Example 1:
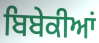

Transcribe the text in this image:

ਬਿਬੇਕੀਆਂ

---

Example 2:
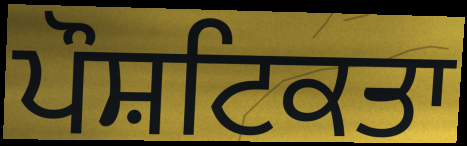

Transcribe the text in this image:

ਪੌਸ਼ਟਿਕਤਾ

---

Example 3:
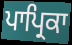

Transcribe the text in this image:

ਪਾਪ੍ਰਿਕਾ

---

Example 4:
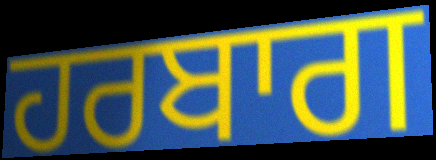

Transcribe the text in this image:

ਹਰਬਾਗ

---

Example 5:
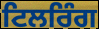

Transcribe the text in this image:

ਟਿਲਰਿੰਗ